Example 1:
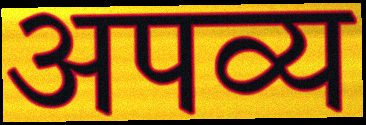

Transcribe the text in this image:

अपव्य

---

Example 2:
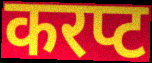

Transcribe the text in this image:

करप्ट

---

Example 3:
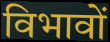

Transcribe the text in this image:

विभावों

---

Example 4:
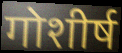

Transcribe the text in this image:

गोशीर्ष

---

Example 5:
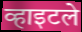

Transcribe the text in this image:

व्हाइटले